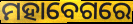
ମହାବେଗରେ